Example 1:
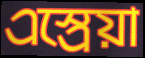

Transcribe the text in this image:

এস্ত্রেয়া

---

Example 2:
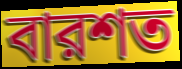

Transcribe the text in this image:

বারশত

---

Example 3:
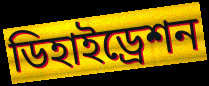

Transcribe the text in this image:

ডিহাইড্রেশন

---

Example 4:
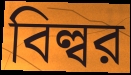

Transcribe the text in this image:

বিল্বর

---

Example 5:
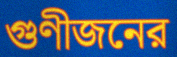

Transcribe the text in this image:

গুণীজনের